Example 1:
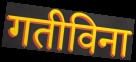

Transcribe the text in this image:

गतीविना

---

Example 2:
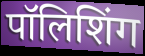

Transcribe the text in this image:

पॉलिशिंग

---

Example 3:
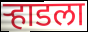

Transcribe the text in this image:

ऱ्हाडला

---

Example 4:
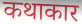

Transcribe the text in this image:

कथाकार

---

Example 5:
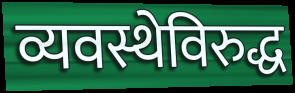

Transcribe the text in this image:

व्यवस्थेविरुद्ध